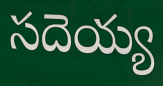
సదెయ్య